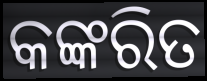
କଙ୍କରିତ